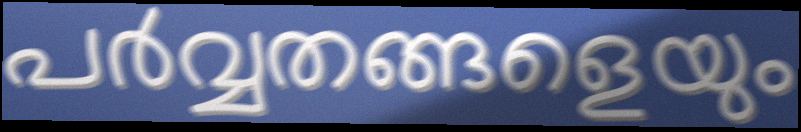
പർവ്വതങ്ങളെയും